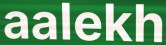
aalekh